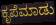
ಕೃಪೆಮಾಡು